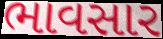
ભાવસાર